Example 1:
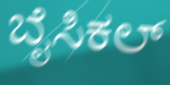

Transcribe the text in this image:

ಬೈಸಿಕಲ್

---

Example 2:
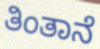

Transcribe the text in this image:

ತಿಂತಾನೆ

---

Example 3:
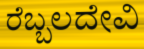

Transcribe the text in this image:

ರೆಬ್ಬಲದೇವಿ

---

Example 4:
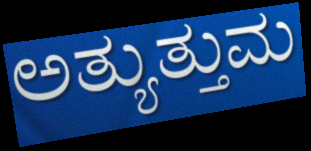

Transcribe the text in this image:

ಅತ್ಯುತ್ತುಮ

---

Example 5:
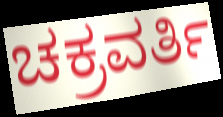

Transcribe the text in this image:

ಚಕ್ರವರ್ತಿ